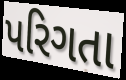
પરિગતા